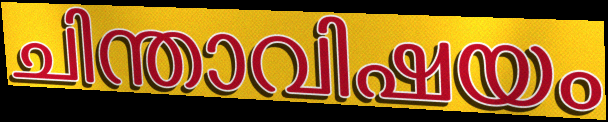
ചിന്താവിഷയം